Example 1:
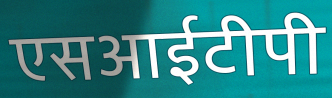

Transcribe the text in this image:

एसआईटीपी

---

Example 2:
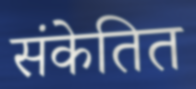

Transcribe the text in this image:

संकेतित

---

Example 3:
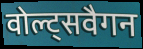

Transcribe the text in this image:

वोल्ट्सवैगन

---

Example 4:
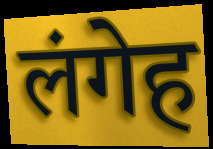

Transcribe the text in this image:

लंगेह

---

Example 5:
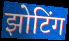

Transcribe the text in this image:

झोटिंग